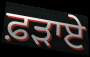
ਫ਼ੜਾਏ